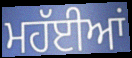
ਮਹੱਈਆਂ